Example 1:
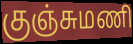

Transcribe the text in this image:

குஞ்சுமணி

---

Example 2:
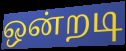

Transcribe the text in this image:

ஒன்றடி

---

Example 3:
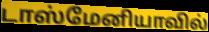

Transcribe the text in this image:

டாஸ்மேனியாவில்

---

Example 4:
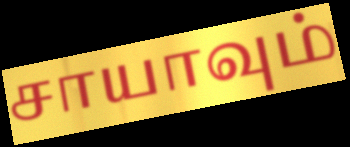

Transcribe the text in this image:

சாயாவும்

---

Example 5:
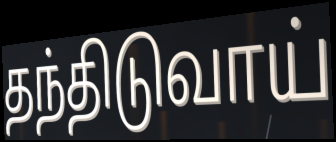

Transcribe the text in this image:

தந்திடுவாய்